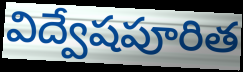
విద్వేషపూరిత